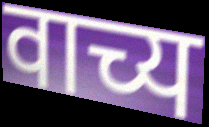
वाच्य